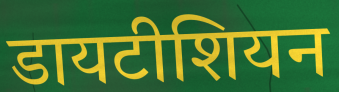
डायटीशियन